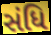
સંધિ